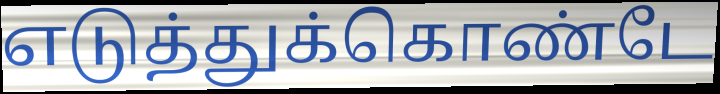
எடுத்துக்கொண்டே